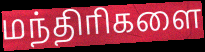
மந்திரிகளை